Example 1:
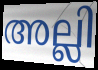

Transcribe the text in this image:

അല്ലി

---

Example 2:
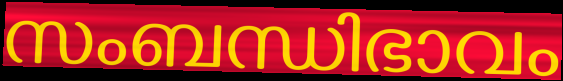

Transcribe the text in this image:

സംബന്ധിഭാവം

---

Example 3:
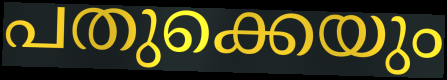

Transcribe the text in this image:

പതുക്കെയും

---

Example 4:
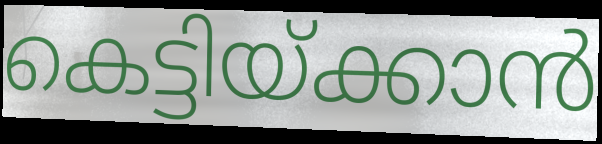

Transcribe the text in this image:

കെട്ടിയ്ക്കാൻ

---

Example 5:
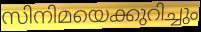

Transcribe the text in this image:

സിനിമയെക്കുറിച്ചും